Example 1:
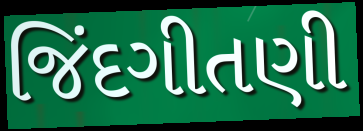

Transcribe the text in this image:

જિંદગીતણી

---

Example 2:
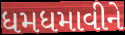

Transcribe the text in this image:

ધમધમાવીને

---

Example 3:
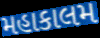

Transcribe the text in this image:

મહાકાલમ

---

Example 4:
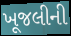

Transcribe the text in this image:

ખૂજલીની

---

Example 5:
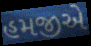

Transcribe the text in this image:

હમજીએ